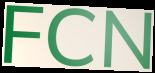
FCN